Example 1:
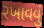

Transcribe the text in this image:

રખાવવું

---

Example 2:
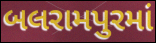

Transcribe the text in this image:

બલરામપુરમાં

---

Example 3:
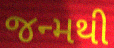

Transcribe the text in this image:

જન્મથી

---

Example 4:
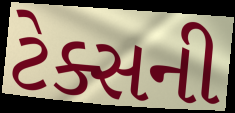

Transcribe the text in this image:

ટેક્સની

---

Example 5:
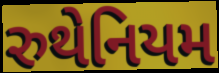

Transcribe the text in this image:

રુથેનિયમ